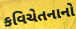
કવિચેતનાનો